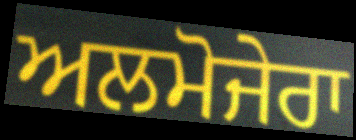
ਅਲਮੋਜੇਰਾ